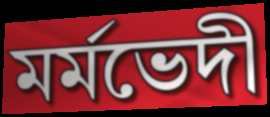
মৰ্মভেদী